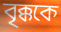
বৃক্ককে